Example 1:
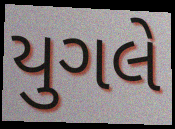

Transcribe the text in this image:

યુગલે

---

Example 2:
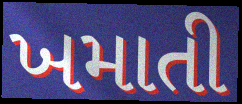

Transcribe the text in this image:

ખમાતી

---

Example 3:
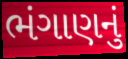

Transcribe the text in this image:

ભંગાણનું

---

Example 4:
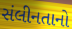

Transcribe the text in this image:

સંલીનતાનો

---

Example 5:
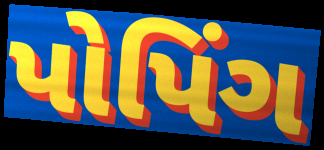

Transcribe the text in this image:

પોપિંગ